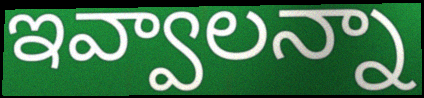
ఇవ్వాలన్నా